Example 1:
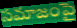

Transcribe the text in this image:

సమాజంపై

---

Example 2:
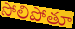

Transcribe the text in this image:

సోలిపోతూ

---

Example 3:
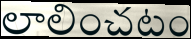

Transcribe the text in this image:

లాలించటం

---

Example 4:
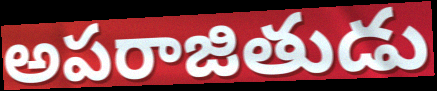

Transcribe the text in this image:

అపరాజితుడు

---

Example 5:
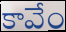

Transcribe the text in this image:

కావేం